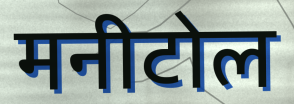
मनीटोल